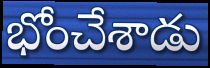
భోంచేశాడు